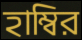
হাম্বির